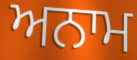
ਅਨਾਮ